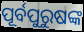
ପୂର୍ବପୁରୁଷଙ୍କ